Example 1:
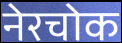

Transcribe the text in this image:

नेरचोक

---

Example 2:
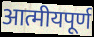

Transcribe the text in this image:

आत्मीयपूर्ण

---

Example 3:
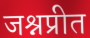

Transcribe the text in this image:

जश्नप्रीत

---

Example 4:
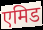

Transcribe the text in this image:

एमिड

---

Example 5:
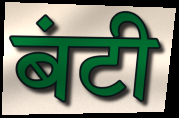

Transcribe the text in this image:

बंटी